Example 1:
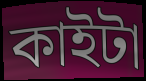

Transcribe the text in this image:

কাইটা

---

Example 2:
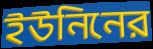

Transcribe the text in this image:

ইউনিনের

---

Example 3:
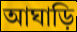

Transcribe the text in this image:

আঘাড়ি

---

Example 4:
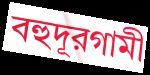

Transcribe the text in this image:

বহুদূরগামী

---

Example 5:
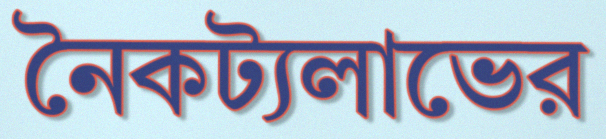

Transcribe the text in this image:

নৈকট্যলাভের